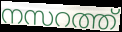
നസറത്ത്